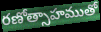
రణోత్సాహముతో